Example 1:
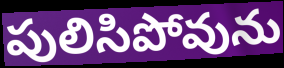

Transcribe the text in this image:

పులిసిపోవును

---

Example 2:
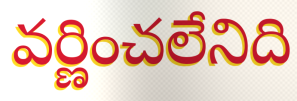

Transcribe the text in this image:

వర్ణించలేనిది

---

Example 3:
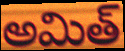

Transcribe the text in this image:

అమిత్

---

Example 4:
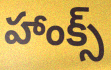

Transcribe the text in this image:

హాంక్స్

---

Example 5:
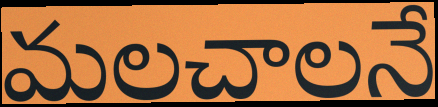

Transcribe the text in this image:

మలచాలనే